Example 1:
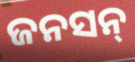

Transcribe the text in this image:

ଜନସନ୍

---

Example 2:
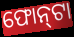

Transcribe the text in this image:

ଫୋନ୍‍ଟା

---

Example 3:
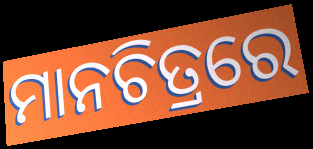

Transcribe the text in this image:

ମାନଚିତ୍ରରେ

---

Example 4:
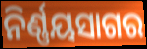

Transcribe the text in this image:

ନିର୍ଣ୍ଣୟସାଗର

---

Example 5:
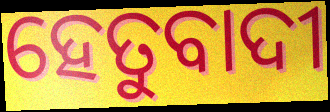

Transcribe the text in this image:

ହେତୁବାଦୀ